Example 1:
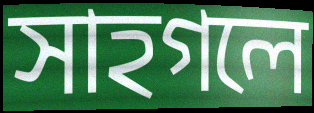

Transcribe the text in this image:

সাহগলে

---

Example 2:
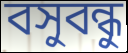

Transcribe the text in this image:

বসুবন্ধু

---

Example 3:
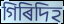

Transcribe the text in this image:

গিৰিদিহ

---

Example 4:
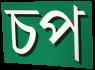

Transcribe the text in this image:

চপ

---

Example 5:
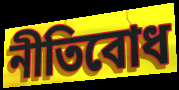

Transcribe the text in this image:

নীতিবোধ